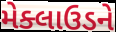
મેક્લાઉડને